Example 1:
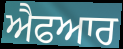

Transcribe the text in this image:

ਐਫਆਰ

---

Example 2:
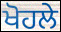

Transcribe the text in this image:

ਖੋਹਲੇ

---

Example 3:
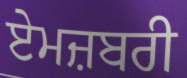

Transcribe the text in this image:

ਏਮਜ਼ਬਰੀ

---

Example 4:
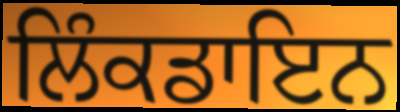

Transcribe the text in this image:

ਲਿੰਕਡਾਇਨ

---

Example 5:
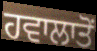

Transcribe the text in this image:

ਹਵਾਲਾਤੋਂ